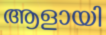
ആളായി